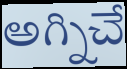
అగ్నిచే